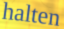
halten